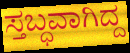
ಸ್ತಬ್ಧವಾಗಿದ್ದ